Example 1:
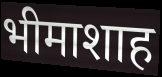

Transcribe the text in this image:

भीमाशाह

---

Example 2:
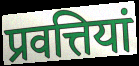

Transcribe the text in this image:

प्रवत्तियां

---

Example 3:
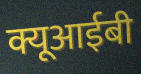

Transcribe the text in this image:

क्यूआईबी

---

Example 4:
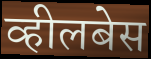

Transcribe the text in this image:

व्हीलबेस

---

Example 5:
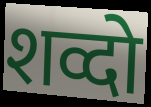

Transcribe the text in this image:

शव्दो